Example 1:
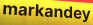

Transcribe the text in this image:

markandey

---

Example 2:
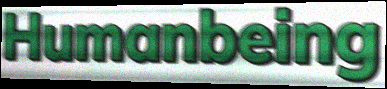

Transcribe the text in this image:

Humanbeing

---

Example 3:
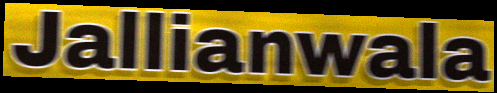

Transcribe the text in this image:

Jallianwala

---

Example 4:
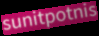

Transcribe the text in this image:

sunitpotnis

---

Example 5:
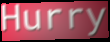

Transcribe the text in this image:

Hurry